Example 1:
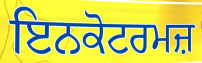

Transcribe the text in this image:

ਇਨਕੋਟਰਮਜ਼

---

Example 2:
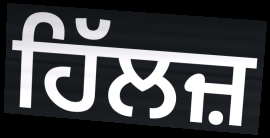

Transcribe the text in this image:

ਹਿੱਲਜ਼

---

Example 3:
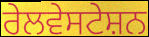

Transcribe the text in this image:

ਰੇਲਵੇਸਟੇਸ਼ਨ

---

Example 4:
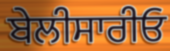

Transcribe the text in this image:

ਬੇਲੀਸਾਰੀਓ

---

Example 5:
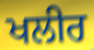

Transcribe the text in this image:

ਖਲੀਰ